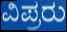
ವಿಪ್ರರು